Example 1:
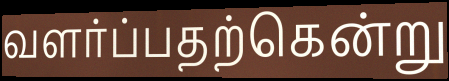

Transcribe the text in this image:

வளர்ப்பதற்கென்று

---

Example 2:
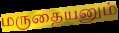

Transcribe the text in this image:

மருதையனும்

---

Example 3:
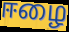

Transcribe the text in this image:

ஈழை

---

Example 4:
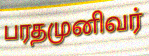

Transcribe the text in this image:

பரதமுனிவர்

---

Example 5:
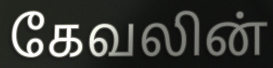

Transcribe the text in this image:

கேவலின்